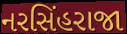
નરસિંહરાજા